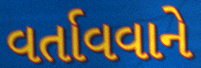
વર્તાવવાને